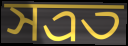
সত্ৰত